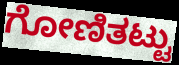
ಗೋಣಿತಟ್ಟು